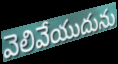
వెలివేయుదును